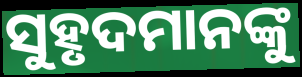
ସୁହୃଦମାନଙ୍କୁ